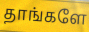
தாங்களே